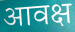
आवक्ष